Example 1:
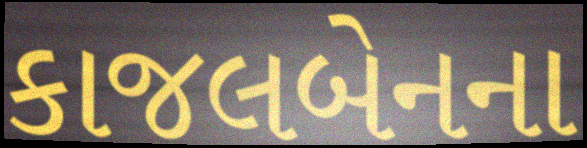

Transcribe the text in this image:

કાજલબેનના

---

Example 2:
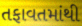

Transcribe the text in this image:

તફાવતમાંથી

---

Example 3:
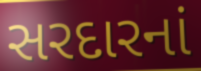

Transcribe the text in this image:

સરદારનાં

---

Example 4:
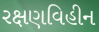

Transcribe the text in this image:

રક્ષણવિહીન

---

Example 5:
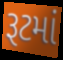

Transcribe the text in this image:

રૂટમાં